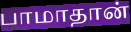
பாமாதான்